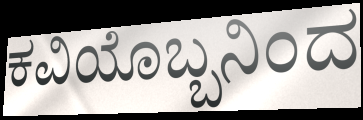
ಕವಿಯೊಬ್ಬನಿಂದ